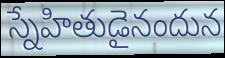
స్నేహితుడైనందున